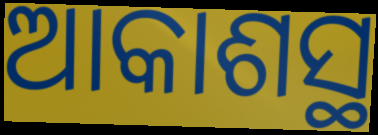
ଆକାଶସ୍ଥ